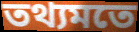
তথ্যমতে